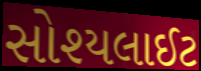
સોશ્યલાઈટ